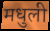
मधुली